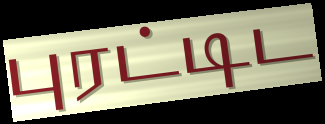
புரட்டிட